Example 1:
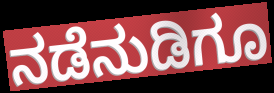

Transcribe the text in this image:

ನಡೆನುಡಿಗೂ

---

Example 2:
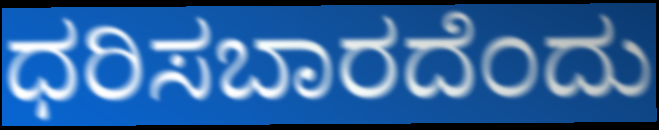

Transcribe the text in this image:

ಧರಿಸಬಾರದೆಂದು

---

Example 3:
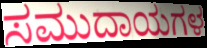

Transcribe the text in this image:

ಸಮುದಾಯಗಳ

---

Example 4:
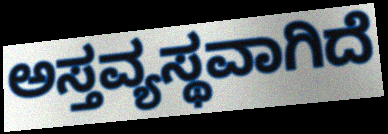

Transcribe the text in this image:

ಅಸ್ತವ್ಯಸ್ಥವಾಗಿದೆ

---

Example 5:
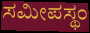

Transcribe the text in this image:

ಸಮೀಪಸ್ಥಂ